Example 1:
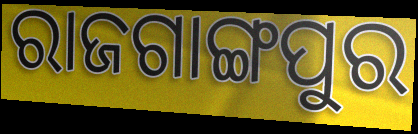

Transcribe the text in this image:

ରାଜଗାଙ୍ଗପୁର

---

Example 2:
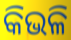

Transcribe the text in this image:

କିଭଳି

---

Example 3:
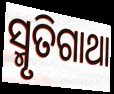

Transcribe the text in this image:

ସ୍ମୃତିଗାଥା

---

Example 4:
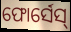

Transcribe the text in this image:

ଫୋର୍ସେସ୍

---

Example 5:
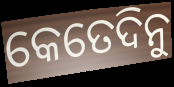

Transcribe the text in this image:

କେତେଦିନୁ